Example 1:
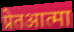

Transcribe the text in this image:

प्रेतआत्मा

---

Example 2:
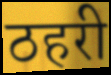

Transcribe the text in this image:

ठहरी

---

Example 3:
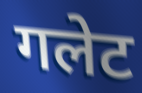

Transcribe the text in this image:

गलेट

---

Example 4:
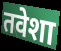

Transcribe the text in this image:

तवेशा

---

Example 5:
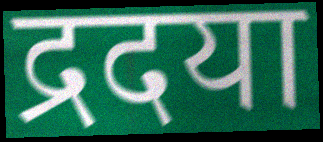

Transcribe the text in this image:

द्रदया